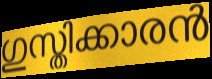
ഗുസ്തിക്കാരൻ